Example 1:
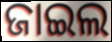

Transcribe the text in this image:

ଜାଇଲ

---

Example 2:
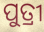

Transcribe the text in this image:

ପୁତ୍ରୀ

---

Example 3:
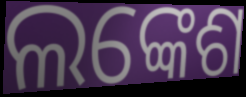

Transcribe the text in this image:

ଲଙ୍କେଶ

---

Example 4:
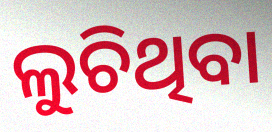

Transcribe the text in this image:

ଲୁଚିଥିବା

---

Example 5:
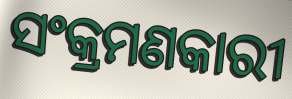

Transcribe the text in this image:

ସଂକ୍ରମଣକାରୀ